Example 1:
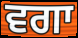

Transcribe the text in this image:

ਵਗਾ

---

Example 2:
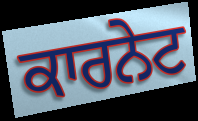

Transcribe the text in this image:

ਕਾਰਨੇਟ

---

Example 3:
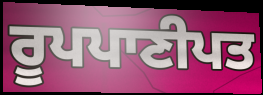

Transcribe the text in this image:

ਰੂਪਪਾਣੀਪਤ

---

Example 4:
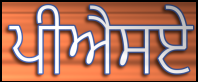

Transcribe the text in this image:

ਪੀਐਸਏ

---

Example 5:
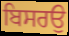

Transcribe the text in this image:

ਬਿਸਰਉ